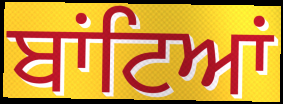
ਬਾਂਟਿਆਂ